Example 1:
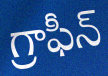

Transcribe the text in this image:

గ్రాఫీన్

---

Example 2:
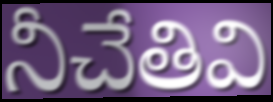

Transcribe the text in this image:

నీచేతివి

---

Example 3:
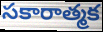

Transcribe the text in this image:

సకారాత్మక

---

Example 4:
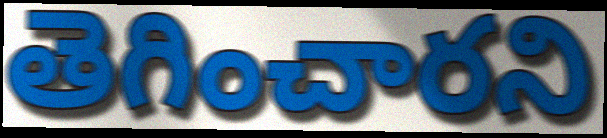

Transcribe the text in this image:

తెగించారని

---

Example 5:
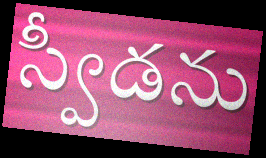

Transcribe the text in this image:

స్వీడను